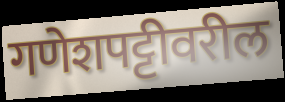
गणेशपट्टीवरील